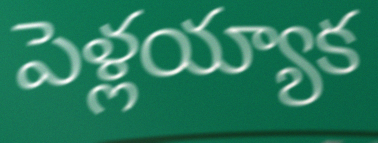
పెళ్లయ్యాక